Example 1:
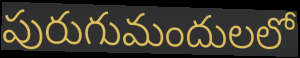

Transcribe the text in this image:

పురుగుమందులలో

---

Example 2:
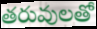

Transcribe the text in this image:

తరువులతో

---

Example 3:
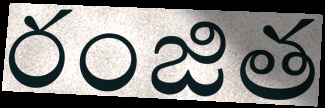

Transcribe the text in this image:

రంజిత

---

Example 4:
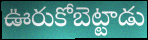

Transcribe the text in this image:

ఊరుకోబెట్టాడు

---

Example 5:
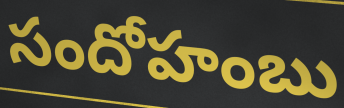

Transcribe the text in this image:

సందోహంబు